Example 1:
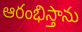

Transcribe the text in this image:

ఆరంభిస్తాను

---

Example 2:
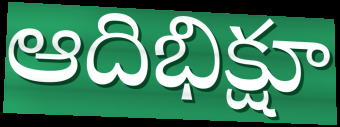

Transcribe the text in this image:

ఆదిభిక్షూ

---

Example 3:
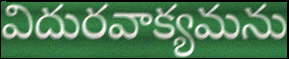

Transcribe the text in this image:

విదురవాక్యమను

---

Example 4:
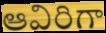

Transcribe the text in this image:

ఆవిరిగా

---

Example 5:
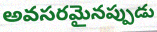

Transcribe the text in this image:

అవసరమైనప్పుడు